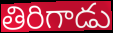
తిరిగాడు